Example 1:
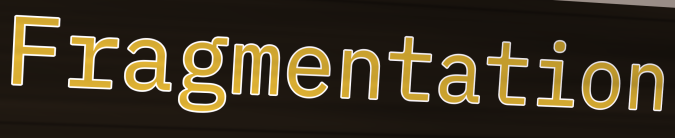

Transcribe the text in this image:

Fragmentation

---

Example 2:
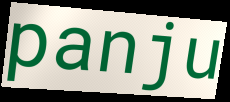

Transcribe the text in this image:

panju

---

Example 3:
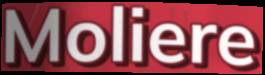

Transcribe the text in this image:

Moliere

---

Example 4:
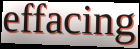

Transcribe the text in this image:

effacing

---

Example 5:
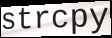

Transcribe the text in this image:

strcpy